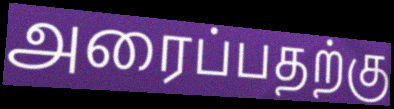
அரைப்பதற்கு